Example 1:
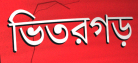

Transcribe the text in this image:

ভিতরগড়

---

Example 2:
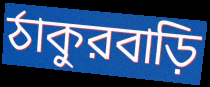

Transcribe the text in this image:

ঠাকুরবাড়ি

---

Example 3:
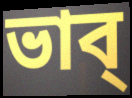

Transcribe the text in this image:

ভাব্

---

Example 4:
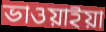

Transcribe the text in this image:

ভাওয়াইয়া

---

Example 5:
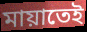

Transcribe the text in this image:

মায়াতেই